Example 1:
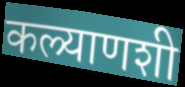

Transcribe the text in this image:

कल्याणशी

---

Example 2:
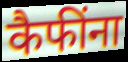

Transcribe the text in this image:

कैफींना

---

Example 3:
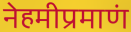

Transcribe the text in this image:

नेहमीप्रमाणं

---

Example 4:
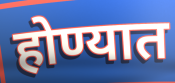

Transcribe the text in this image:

होण्यात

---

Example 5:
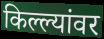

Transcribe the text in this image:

किल्ल्यांवर